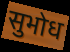
सुभोध